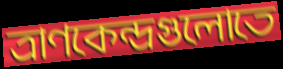
ত্রাণকেন্দ্রগুলোতে